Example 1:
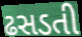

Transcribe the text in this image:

ઢસડતી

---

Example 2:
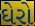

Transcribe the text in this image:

ઘેરો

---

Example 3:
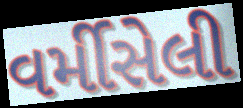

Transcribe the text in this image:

વર્મીસેલી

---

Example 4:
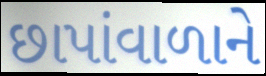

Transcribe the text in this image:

છાપાંવાળાને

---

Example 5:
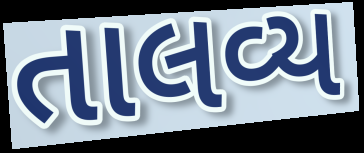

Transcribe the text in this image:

તાલવ્ય